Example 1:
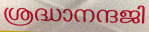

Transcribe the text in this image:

ശ്രദ്ധാനന്ദജി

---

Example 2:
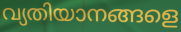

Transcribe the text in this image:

വ്യതിയാനങ്ങളെ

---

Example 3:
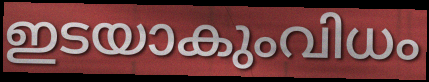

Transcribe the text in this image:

ഇടയാകുംവിധം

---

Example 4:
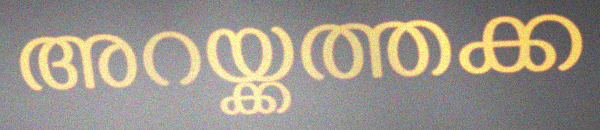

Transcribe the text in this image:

അറയ്ക്കത്തക്ക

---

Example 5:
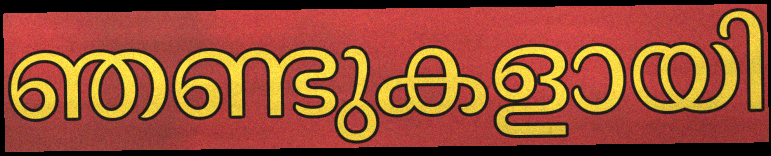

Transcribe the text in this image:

ഞണ്ടുകളായി